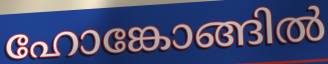
ഹോങ്കോങ്ങിൽ